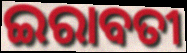
ଇରାବତୀ